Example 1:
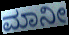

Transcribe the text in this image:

ಮಾನೀ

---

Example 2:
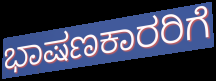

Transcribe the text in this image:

ಭಾಷಣಕಾರರಿಗೆ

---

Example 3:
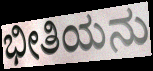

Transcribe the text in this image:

ಭೀತಿಯನು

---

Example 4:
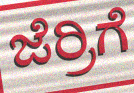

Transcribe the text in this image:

ಜೆರ್ರಿಗೆ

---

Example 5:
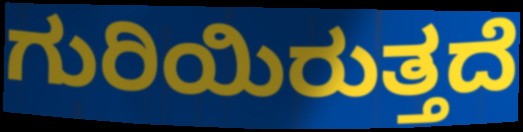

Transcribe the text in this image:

ಗುರಿಯಿರುತ್ತದೆ